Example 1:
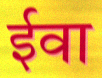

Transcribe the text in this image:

ईवा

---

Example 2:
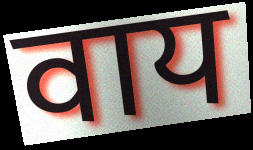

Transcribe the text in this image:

वाय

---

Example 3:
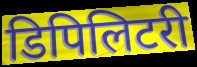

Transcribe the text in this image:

डिपिलिटरी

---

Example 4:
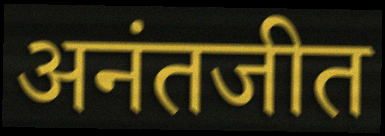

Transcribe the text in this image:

अनंतजीत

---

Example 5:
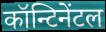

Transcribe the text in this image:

कॉन्टिनेंटल